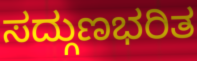
ಸದ್ಗುಣಭರಿತ